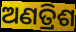
ଅଣତ୍ରିଶ